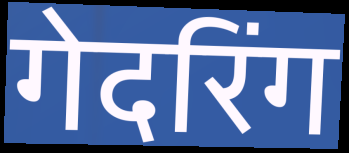
गेदरिंग